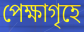
পেক্ষাগৃহে